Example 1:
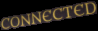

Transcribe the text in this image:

CONNECTED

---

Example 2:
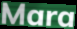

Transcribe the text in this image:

Mara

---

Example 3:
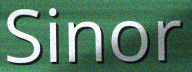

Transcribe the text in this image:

Sinor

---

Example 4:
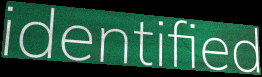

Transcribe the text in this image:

identified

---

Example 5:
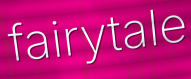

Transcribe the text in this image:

fairytale